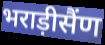
भराड़ीसैंण